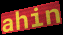
ahin